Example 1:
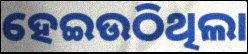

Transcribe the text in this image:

ହେଇଉଠିଥିଲା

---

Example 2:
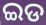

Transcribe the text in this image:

ଇଡ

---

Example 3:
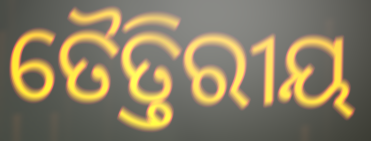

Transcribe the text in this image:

ତୈତ୍ତିରୀୟ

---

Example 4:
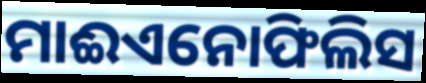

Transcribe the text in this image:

ମାଈଏନୋଫିଲିସ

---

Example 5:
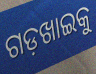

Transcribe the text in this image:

ଗଡ଼ଖାଇକୁ